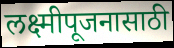
लक्ष्मीपूजनासाठी